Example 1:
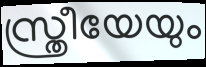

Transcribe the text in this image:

സ്ത്രീയേയും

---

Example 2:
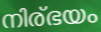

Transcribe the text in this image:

നിര്ഭയം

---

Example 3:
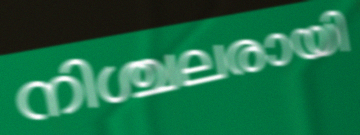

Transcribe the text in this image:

നിശ്ചലരായി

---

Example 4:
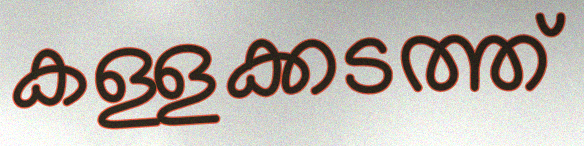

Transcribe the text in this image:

കള്ളക്കടത്ത്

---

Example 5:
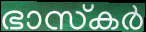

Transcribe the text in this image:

ഭാസ്‌കർ